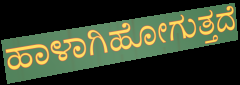
ಹಾಳಾಗಿಹೋಗುತ್ತದೆ